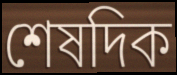
শেষদিক